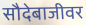
सौदेबाजीवर